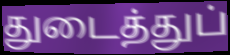
துடைத்துப்